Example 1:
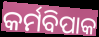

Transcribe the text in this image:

କର୍ମବିପାକ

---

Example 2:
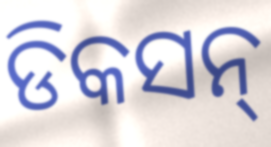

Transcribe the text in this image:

ଡିକସନ୍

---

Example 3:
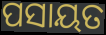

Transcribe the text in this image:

ପସାୟତ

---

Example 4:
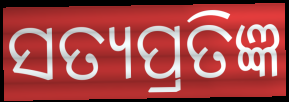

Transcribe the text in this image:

ସତ୍ୟପ୍ରତିଜ୍ଞ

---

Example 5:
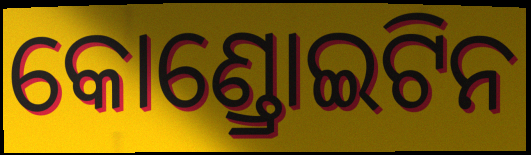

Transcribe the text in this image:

କୋଣ୍ଡ୍ରୋଇଟିନ